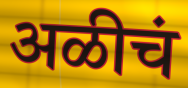
अळीचं